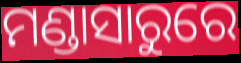
ମଣ୍ଡାସାରୁରେ